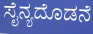
ಸೈನ್ಯದೊಡನೆ